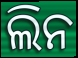
ଲିନ